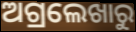
ଅଗ୍ରଲେଖାରୁ